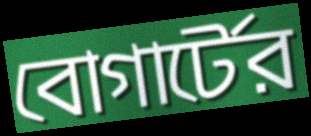
বোগার্টের